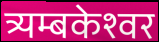
त्र्यम्बकेश्वर